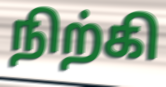
நிற்கி